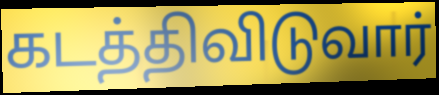
கடத்திவிடுவார்